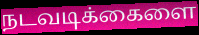
நடவடிக்கைளை